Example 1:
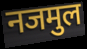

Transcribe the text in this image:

नजमुल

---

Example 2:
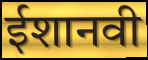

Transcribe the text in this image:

ईशानवी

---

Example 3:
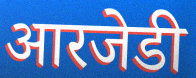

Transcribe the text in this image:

आरजेडी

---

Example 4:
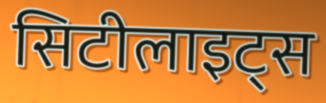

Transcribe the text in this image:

सिटीलाइट्स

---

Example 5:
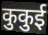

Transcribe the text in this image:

कुकुई